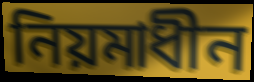
নিয়মাধীন